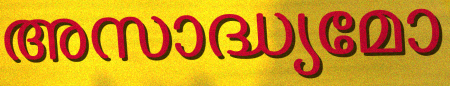
അസാദ്ധ്യമോ